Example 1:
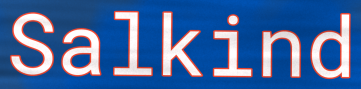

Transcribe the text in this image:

Salkind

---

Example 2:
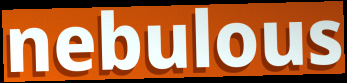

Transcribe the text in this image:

nebulous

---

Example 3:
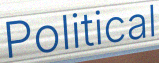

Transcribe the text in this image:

Political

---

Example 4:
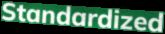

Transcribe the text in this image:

Standardized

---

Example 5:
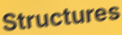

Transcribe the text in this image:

Structures